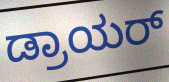
ಡ್ರಾಯರ್